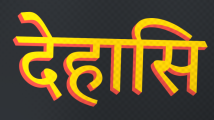
देहासि